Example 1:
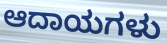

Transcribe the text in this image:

ಆದಾಯಗಳು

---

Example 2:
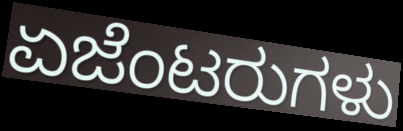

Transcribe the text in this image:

ಏಜೆಂಟರುಗಳು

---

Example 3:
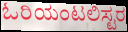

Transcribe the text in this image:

ಓರಿಯಂಟಲಿಸ್ಟರ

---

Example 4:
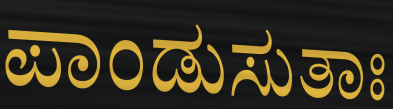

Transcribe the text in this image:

ಪಾಂಡುಸುತಾಃ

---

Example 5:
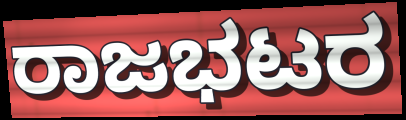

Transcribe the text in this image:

ರಾಜಭಟರ